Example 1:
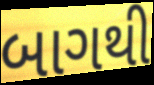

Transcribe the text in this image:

બાગથી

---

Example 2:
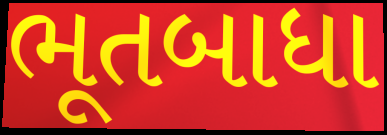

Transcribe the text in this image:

ભૂતબાધા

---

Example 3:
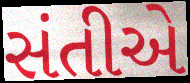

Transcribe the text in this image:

સંતીએ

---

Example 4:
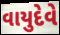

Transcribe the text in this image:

વાયુદેવે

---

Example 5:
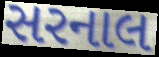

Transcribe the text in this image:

સરનાલ